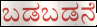
ಬಡಬಡನೆ